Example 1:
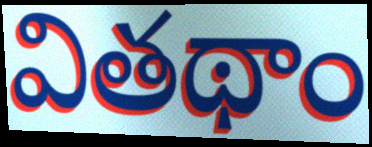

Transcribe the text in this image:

వితథాం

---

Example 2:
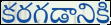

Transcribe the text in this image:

కరగడానికి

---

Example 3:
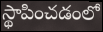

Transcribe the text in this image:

స్థాపించడంలో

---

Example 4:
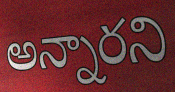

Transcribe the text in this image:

అన్నారని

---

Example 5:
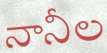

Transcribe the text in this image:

నానీల